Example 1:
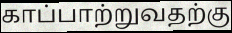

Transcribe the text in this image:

காப்பாற்றுவதற்கு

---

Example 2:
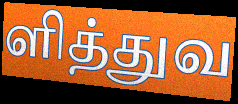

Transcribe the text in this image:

ளித்துவ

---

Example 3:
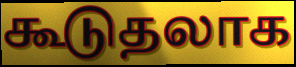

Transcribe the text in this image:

கூடுதலாக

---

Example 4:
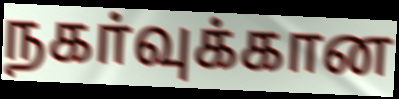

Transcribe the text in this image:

நகர்வுக்கான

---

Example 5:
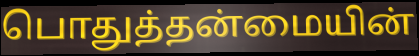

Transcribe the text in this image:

பொதுத்தன்மையின்